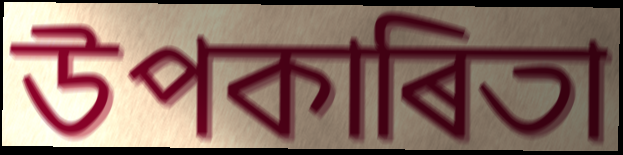
উপকাৰিতা